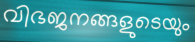
വിഭജനങ്ങളുടെയും